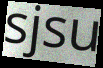
sjsu